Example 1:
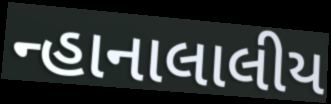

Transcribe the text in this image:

ન્હાનાલાલીય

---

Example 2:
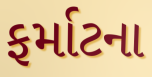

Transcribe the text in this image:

ફર્માટના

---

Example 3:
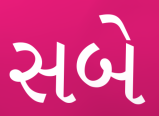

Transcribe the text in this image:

સબે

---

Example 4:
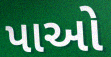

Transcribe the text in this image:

પાઓ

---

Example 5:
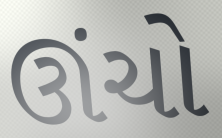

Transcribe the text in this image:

ઊંચો